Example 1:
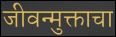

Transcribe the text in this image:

जीवन्मुक्ताचा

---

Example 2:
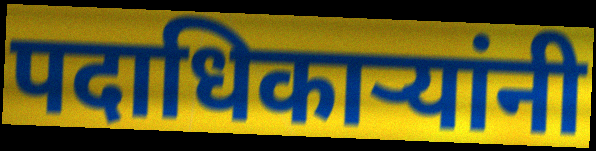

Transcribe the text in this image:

पदाधिकार्‍यांनी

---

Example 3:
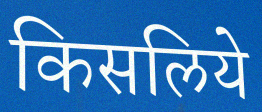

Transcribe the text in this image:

किसलिये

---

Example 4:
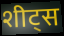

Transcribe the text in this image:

शीट्स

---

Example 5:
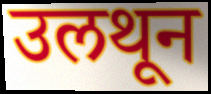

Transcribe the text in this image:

उलथून